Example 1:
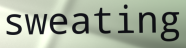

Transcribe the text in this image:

sweating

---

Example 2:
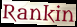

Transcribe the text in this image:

Rankin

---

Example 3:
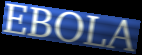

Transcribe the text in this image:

EBOLA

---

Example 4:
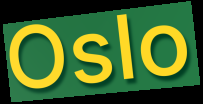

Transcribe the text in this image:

Oslo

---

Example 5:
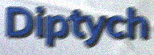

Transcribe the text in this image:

Diptych